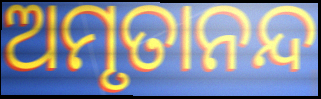
ଅମୃତାନନ୍ଦ